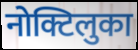
नोक्टिलुका